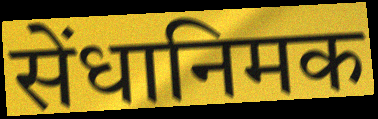
सेंधानिमक